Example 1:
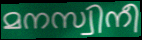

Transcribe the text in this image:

മനസ്വിനീ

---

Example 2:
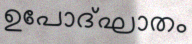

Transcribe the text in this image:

ഉപോദ്ഘാതം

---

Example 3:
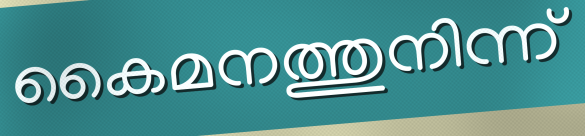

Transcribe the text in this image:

കൈമനത്തുനിന്ന്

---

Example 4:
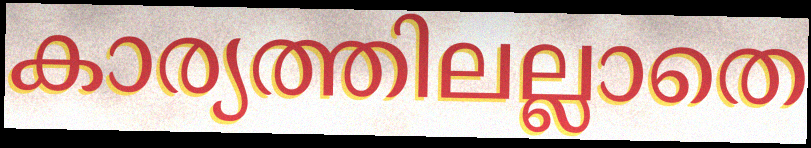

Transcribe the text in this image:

കാര്യത്തിലല്ലാതെ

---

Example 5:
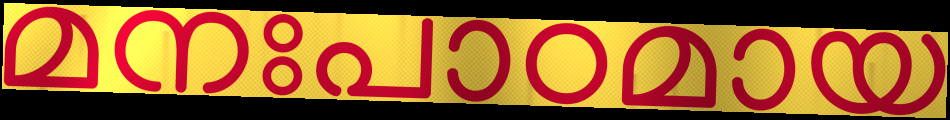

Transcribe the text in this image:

മനഃപാഠമായ